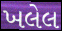
ખલેલ